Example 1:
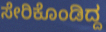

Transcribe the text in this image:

ಸೇರಿಕೊಂಡಿದ್ದ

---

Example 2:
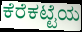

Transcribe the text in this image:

ಕೆರೆಕಟ್ಟೆಯ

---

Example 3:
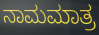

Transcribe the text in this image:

ನಾಮಮಾತ್ರ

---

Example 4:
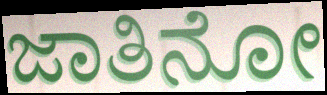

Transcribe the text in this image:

ಜಾತಿನೋ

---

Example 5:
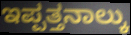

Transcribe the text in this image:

ಇಪ್ಪತ್ತನಾಲ್ಕು